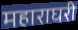
महाराघरी